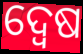
ଦ୍ବେଷ